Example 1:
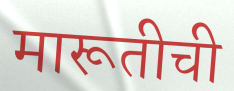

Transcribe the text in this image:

मारूतीची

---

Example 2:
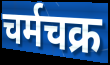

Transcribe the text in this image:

चर्मचक्र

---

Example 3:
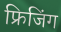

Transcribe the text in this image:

फ्रिजिंग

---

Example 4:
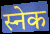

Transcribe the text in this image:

स्‍नेक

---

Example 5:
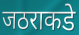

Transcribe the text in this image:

जठराकडे